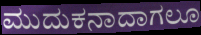
ಮುದುಕನಾದಾಗಲೂ